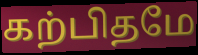
கற்பிதமே